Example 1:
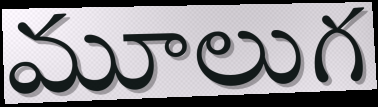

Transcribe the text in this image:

మూలుగ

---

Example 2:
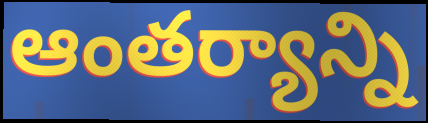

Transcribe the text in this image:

ఆంతర్యాన్ని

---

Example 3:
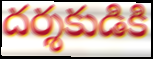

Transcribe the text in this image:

దర్శకుడికి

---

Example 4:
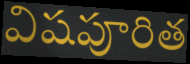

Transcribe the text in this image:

విషపూరిత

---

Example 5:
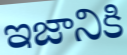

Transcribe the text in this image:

ఇజానికి